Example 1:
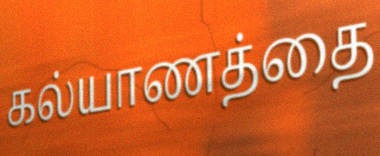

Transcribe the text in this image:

கல்யாணத்தை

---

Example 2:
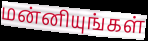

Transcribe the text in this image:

மன்னியுங்கள்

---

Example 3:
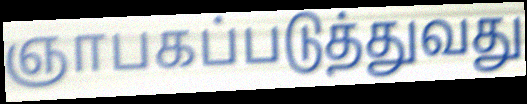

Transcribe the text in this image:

ஞாபகப்படுத்துவது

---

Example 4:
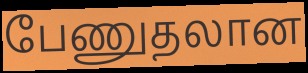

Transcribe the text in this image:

பேணுதலான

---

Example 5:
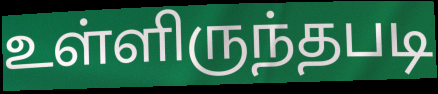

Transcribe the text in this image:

உள்ளிருந்தபடி